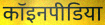
कॉइनपीडिया